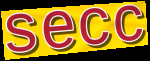
secc